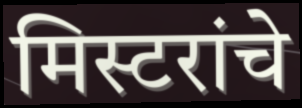
मिस्टरांचे